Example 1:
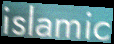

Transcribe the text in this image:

islamic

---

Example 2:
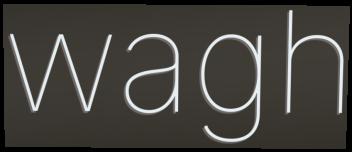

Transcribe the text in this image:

wagh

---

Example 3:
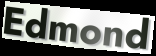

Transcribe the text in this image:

Edmond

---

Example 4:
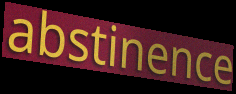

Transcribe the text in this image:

abstinence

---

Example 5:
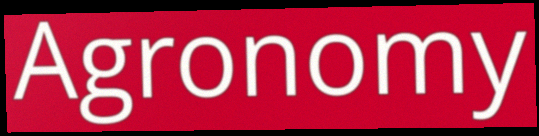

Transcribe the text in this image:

Agronomy